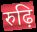
रुढ़ि